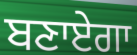
ਬਣਾਏਗਾ